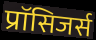
प्रॉसिजर्स